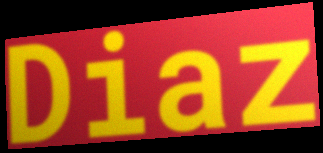
Diaz